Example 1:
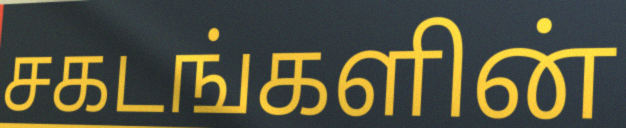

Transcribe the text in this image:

சகடங்களின்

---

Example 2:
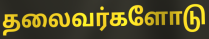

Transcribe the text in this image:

தலைவர்களோடு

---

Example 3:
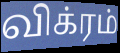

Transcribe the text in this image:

விக்ரம்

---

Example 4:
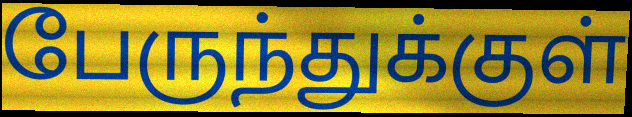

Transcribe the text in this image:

பேருந்துக்குள்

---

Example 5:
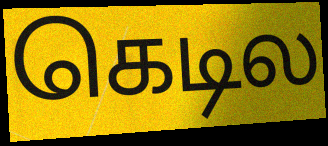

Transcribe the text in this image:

கெடில